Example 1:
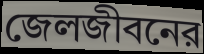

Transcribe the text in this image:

জেলজীবনের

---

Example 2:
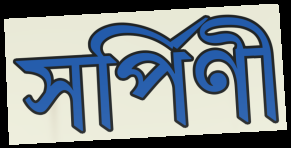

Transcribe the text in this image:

সর্পিণী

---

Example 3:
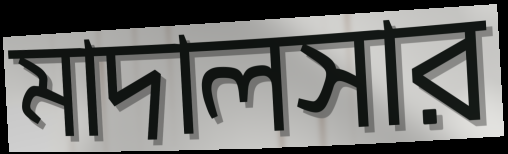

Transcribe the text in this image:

মাদালসার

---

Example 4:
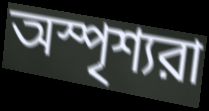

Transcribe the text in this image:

অস্পৃশ্যরা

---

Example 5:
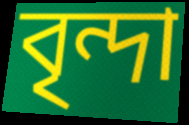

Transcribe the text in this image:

বৃন্দা